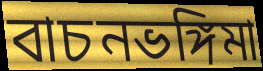
বাচনভঙ্গিমা